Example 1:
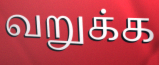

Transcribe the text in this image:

வறுக்க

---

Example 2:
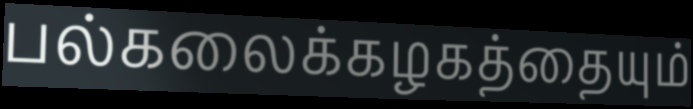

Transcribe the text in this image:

பல்கலைக்கழகத்தையும்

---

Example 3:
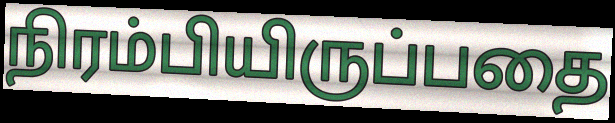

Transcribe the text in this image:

நிரம்பியிருப்பதை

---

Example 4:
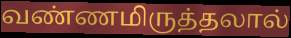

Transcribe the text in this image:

வண்ணமிருத்தலால்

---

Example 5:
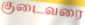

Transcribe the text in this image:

குடைவரை